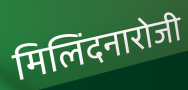
मिलिंदनारोजी